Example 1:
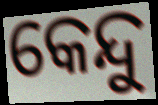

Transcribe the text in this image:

କେନ୍ଦୁ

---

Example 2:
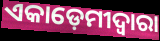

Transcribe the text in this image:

ଏକାଡ଼େମୀଦ୍ଵାରା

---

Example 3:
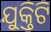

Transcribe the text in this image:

ଯୁକ୍ତିଟି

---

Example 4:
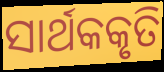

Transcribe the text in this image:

ସାର୍ଥକକୃତି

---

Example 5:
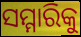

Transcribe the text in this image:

ସମ୍ମାରିକୁ